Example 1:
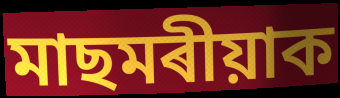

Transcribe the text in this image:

মাছমৰীয়াক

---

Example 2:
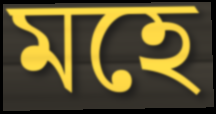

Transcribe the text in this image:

মহে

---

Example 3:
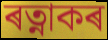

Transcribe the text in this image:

ৰত্নাকৰ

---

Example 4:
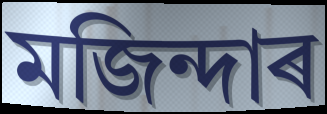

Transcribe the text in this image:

মজিন্দাৰ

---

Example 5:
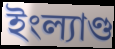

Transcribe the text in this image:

ইংল্যাণ্ড